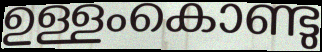
ഉള്ളംകൊണ്ടു